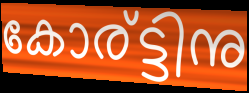
കോര്ട്ടിനു